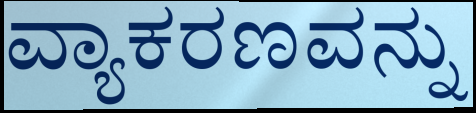
ವ್ಯಾಕರಣವನ್ನು